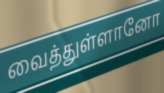
வைத்துள்ளானோ